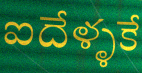
ఐదేళ్ళకే